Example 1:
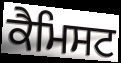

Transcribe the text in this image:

ਕੈਮਿਸਟ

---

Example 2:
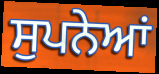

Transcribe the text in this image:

ਸੁਪਨੇਆਂ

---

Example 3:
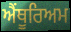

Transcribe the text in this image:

ਐਂਥੂਰਿਅਮ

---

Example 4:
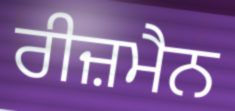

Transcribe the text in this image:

ਰੀਜ਼ਮੈਨ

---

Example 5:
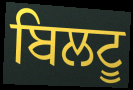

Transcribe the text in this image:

ਬਿਲਟੂ